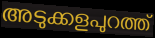
അടുക്കളപുറത്ത്